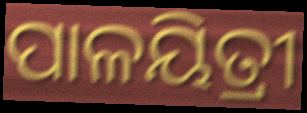
ପାଳୟିତ୍ରୀ